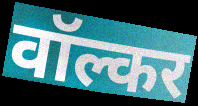
वॉल्कर